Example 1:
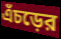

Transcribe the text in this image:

এঁচড়ের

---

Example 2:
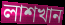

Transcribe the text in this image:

লাশখান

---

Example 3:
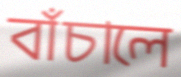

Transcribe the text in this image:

বাঁচালে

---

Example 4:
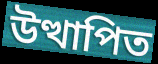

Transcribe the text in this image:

উত্থাপিত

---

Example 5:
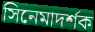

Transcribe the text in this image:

সিনেমাদর্শক